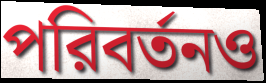
পরিবর্তনও